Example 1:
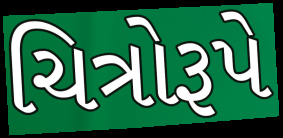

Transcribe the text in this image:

ચિત્રોરૂપે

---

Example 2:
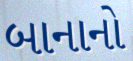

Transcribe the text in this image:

બાનાનો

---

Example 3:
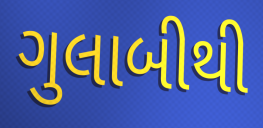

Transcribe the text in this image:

ગુલાબીથી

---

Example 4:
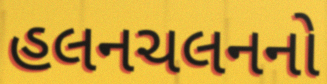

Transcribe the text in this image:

હલનચલનનો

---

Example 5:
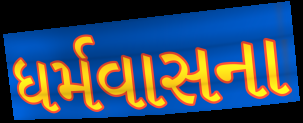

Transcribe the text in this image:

ધર્મવાસના